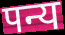
पन्य